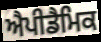
ਐਪੀਡੈਮਿਕ